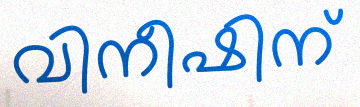
വിനീഷിന്